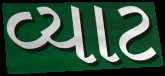
વ્યાટ